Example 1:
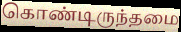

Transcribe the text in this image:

கொண்டிருந்தமை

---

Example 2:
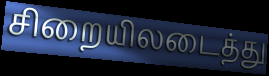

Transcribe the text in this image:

சிறையிலடைத்து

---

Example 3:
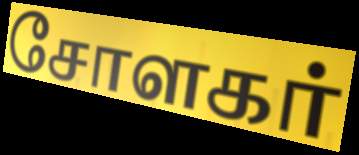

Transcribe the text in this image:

சோளகர்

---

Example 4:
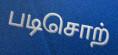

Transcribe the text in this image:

படிசொற்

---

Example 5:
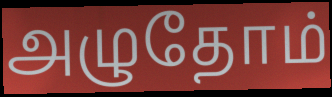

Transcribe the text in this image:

அழுதோம்